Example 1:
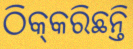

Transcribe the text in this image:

ଠିକ୍‌କରିଛନ୍ତି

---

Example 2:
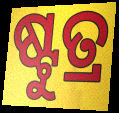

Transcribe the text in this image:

ଷ୍ଟୁତ୍ର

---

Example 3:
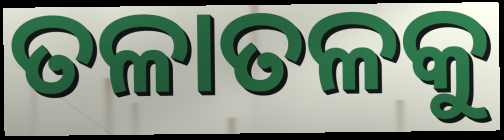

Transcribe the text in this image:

ତଳାତଳକୁ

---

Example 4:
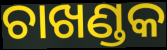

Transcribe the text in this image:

ଚାଖଣ୍ଡକ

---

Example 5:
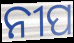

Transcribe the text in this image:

ନୀପ